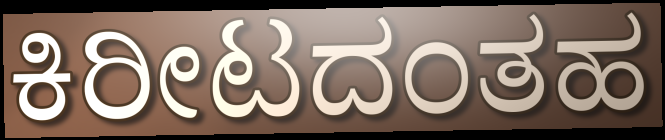
ಕಿರೀಟದಂತಹ